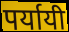
पर्यायी